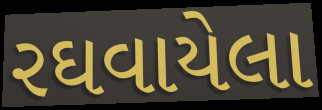
રઘવાયેલા